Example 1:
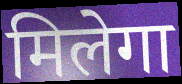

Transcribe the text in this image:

मिलेगा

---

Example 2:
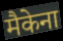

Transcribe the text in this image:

मैकेना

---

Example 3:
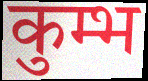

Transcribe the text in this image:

कुम्भ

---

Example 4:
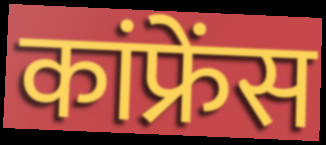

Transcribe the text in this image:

कांफ्रेंस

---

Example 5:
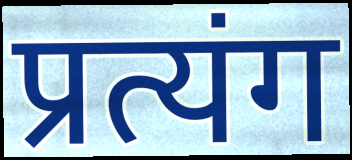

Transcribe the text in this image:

प्रत्यंग